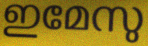
ഇമേസു